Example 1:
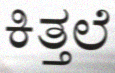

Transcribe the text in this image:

ಕಿತ್ತಲೆ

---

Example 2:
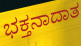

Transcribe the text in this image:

ಭಕ್ತನಾದಾತ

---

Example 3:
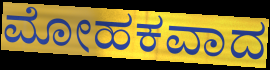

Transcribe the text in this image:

ಮೋಹಕವಾದ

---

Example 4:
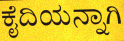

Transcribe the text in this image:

ಕೈದಿಯನ್ನಾಗಿ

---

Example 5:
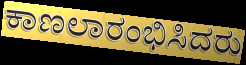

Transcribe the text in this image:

ಕಾಣಲಾರಂಭಿಸಿದರು